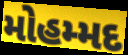
મોહમ્મદ